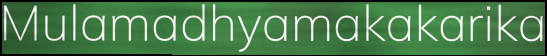
Mulamadhyamakakarika